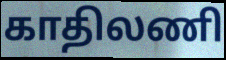
காதிலணி